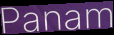
Panam